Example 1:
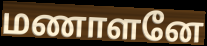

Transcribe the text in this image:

மணாளனே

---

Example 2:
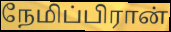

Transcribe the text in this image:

நேமிப்பிரான்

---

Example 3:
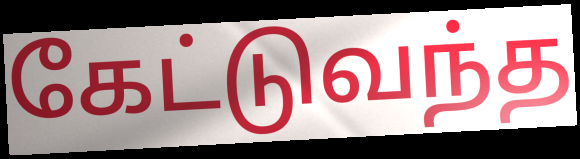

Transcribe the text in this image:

கேட்டுவந்த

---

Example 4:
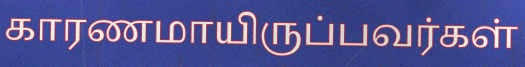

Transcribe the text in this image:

காரணமாயிருப்பவர்கள்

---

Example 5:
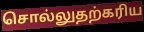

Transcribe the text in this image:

சொல்லுதற்கரிய